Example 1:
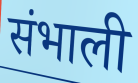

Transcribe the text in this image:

संभाली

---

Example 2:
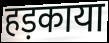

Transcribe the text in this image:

हड़काया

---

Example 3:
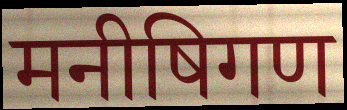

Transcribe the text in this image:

मनीषिगण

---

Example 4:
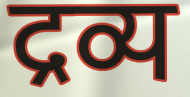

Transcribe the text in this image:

द्रव्य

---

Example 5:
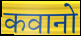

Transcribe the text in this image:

कवानो